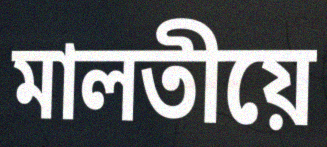
মালতীয়ে